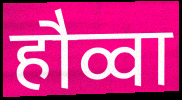
हौव्वा